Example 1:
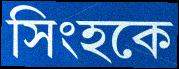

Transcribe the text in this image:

সিংহকে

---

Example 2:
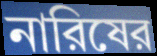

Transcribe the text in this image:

নারিষের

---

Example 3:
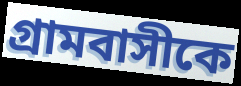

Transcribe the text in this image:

গ্রামবাসীকে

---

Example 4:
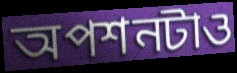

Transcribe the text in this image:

অপশনটাও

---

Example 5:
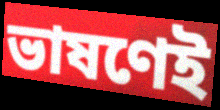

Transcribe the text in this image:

ভাষণেই